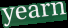
yearn